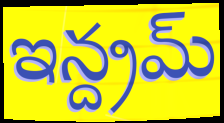
ఇన్ద్రమ్